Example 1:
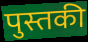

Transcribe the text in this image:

पुस्तकी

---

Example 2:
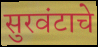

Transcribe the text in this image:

सुरवंटाचे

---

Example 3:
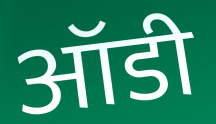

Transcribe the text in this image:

ऑडी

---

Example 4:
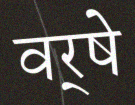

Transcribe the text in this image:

वर्षे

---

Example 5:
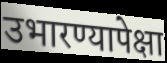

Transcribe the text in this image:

उभारण्यापेक्षा